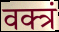
वक्त्रं